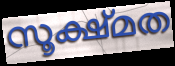
സൂക്ഷ്മത